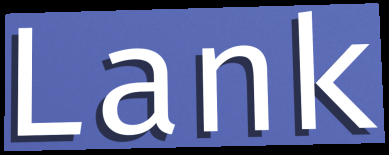
Lank